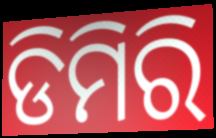
ଡିମିରି